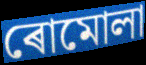
ৰোমোলা